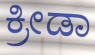
ಕ್ರೀಡಾ